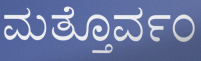
ಮತ್ತೊರ್ವಂ